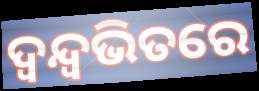
ଦ୍ୱନ୍ଦ୍ୱଭିତରେ